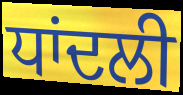
ਧਾਂਦਲੀ